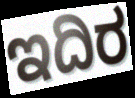
ಇದಿರ